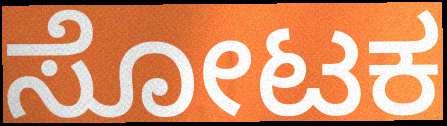
ಸೋಟಕ